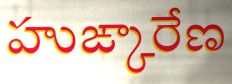
హుఙ్కారేణ